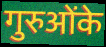
गुरुओंके